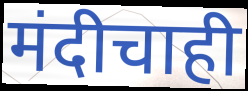
मंदीचाही